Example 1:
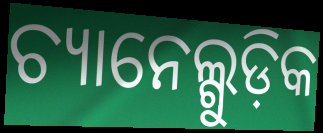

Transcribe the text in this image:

ଚ୍ୟାନେଲ୍ଗୁଡ଼ିକ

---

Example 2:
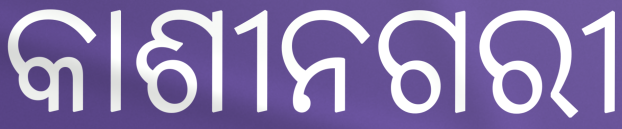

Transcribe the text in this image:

କାଶୀନଗରୀ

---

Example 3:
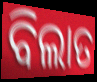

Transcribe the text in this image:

ବିଲାତ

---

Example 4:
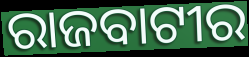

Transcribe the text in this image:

ରାଜବାଟୀର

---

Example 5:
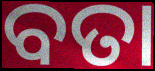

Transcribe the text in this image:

ବତା